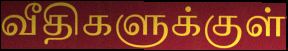
வீதிகளுக்குள்